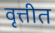
वृत्तीत